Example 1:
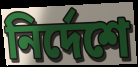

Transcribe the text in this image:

নির্দেশে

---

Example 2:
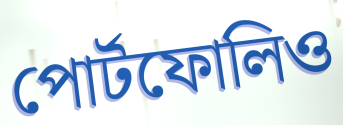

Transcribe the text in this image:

পোর্টফোলিও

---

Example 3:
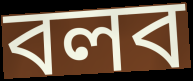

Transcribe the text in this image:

বলব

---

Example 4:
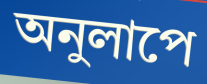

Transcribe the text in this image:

অনুলাপে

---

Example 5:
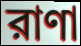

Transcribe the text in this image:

রাণা